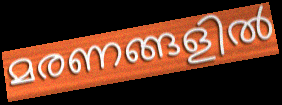
മരണങ്ങളിൽ